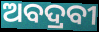
ଅବଦ୍ରବୀ